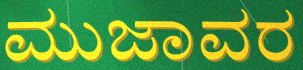
ಮುಜಾವರ